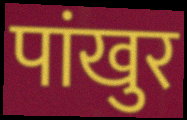
पांखुर